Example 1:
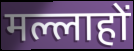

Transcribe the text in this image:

मल्लाहों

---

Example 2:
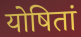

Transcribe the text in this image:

योषितां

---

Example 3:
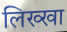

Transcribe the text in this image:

लिख्खा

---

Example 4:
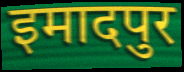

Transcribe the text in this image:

इमादपुर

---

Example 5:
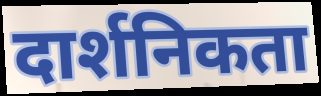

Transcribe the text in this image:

दार्शनिकता